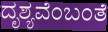
ದೃಶ್ಯವೆಂಬಂತೆ